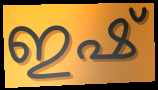
ഇഷ്